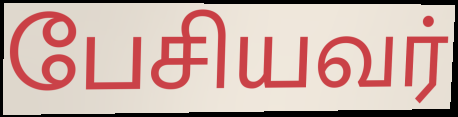
பேசியவர்